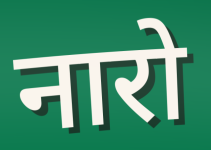
नारो